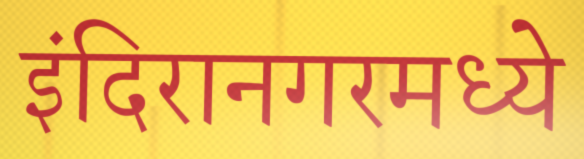
इंदिरानगरमध्ये